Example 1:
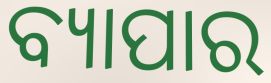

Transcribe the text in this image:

ବ୍ୟାପାର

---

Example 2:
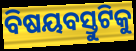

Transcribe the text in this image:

ବିଷୟବସ୍ତୁଟିକୁ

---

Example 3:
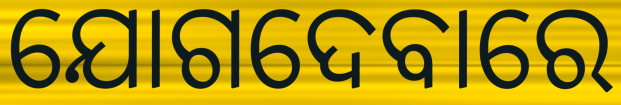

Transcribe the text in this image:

ଯୋଗଦେବାରେ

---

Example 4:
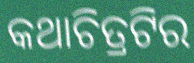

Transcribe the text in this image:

କଥାଚିତ୍ରଟିର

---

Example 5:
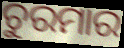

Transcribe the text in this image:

ଚୁରମାର